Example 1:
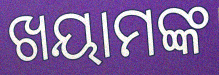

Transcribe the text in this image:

ଖୟାମଙ୍କ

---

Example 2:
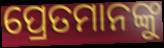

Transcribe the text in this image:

ପ୍ରେତମାନଙ୍କୁ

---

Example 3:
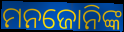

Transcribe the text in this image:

ମନଜୋନିଙ୍କ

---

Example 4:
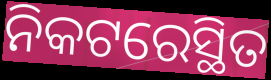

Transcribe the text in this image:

ନିକଟରେସ୍ଥିତ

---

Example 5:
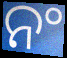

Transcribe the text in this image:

ନଂ